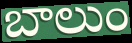
బాలుం